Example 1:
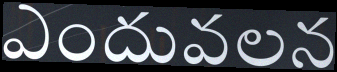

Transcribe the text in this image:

ఎందువలన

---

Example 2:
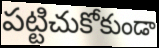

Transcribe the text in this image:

పట్టిచుకోకుండా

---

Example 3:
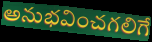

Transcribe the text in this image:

అనుభవించగలిగే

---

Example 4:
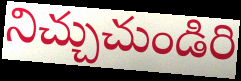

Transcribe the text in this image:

నిచ్చుచుండిరి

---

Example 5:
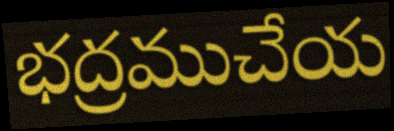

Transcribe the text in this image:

భద్రముచేయ